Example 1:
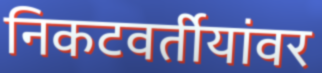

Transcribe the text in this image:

निकटवर्तीयांवर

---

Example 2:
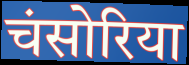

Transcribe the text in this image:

चंसोरिया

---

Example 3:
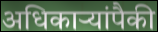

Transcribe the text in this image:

अधिकार्‍यांपैकी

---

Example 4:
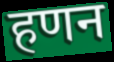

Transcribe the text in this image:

हणन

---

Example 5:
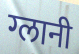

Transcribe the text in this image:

ग्लानी